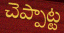
చెప్పాట్ట